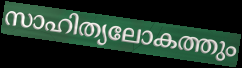
സാഹിത്യലോകത്തും